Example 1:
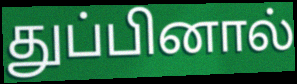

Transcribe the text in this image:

துப்பினால்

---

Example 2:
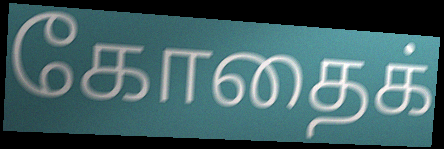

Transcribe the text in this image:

கோதைக்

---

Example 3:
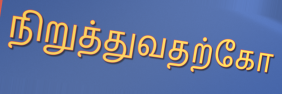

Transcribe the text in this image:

நிறுத்துவதற்கோ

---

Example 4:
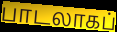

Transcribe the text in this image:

பாடலாகப்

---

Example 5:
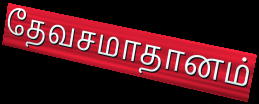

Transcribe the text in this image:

தேவசமாதானம்